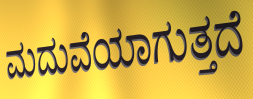
ಮದುವೆಯಾಗುತ್ತದೆ